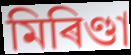
মিৰিণ্ডা